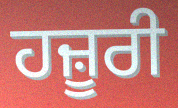
ਹਜ਼ੂਰੀ